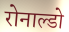
रोनाल्डो